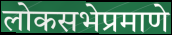
लोकसभेप्रमाणे